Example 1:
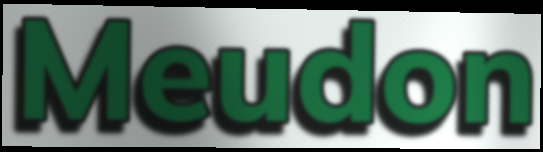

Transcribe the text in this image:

Meudon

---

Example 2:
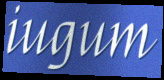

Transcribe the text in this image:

iugum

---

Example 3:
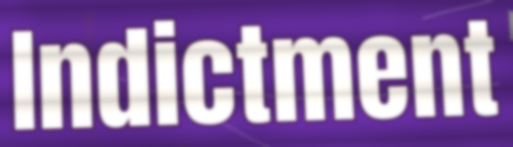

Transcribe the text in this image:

Indictment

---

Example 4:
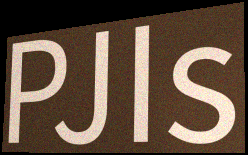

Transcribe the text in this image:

PJIs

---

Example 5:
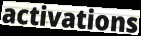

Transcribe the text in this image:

activations